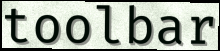
toolbar